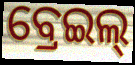
ବ୍ରେଇଲ୍